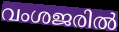
വംശജരിൽ